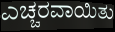
ಎಚ್ಚರವಾಯಿತು